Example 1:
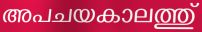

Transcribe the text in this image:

അപചയകാലത്തു്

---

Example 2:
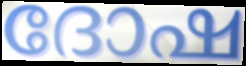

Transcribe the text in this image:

ദോഷ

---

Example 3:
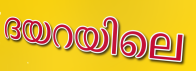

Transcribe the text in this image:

ദയറയിലെ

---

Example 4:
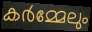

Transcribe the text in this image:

കർമ്മേലും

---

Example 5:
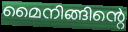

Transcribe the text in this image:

മൈനിങ്ങിന്റെ